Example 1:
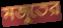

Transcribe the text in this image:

মজুতের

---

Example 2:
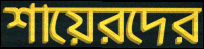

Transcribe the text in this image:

শায়েরদের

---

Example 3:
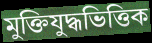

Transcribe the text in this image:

মুক্তিযুদ্ধভিত্তিক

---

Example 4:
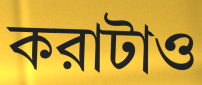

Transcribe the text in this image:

করাটাও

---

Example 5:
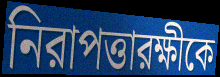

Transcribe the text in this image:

নিরাপত্তারক্ষীকে